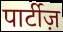
पार्टीज़